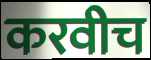
करवीच